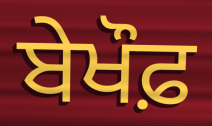
ਬੇਖੌਫ਼